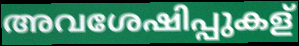
അവശേഷിപ്പുകള്